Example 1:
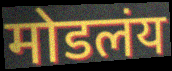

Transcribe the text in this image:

मोडलंय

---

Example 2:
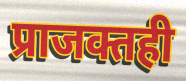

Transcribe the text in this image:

प्राजक्तही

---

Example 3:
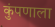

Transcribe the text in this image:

कुंपणाला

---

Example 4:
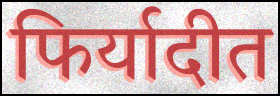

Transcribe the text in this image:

फिर्यादीत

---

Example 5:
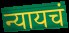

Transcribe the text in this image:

न्यायचं